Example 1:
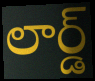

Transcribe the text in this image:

లార్డ్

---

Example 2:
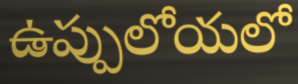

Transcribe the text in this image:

ఉప్పులోయలో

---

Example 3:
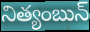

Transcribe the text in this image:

నిత్యంబున్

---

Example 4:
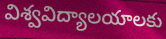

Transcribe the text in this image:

విశ్వవిద్యాలయాలకు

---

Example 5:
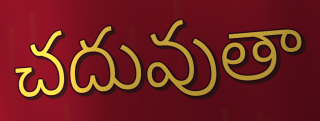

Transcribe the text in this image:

చదువుతా